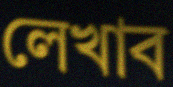
লেখাব